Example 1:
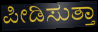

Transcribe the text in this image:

ಪೀಡಿಸುತ್ತಾ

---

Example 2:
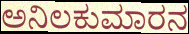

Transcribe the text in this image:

ಅನಿಲಕುಮಾರನ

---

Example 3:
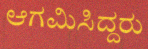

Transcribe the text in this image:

ಆಗಮಿಸಿದ್ದರು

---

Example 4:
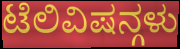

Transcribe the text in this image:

ಟೆಲಿವಿಷನ್ಗಳು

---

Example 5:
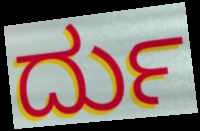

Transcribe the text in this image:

ರ್ದು